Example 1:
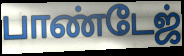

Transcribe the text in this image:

பாண்டேஜ்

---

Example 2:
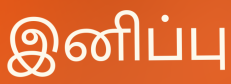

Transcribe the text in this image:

இனிப்பு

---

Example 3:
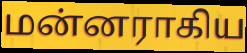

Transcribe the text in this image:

மன்னராகிய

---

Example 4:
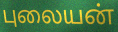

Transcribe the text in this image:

புலையன்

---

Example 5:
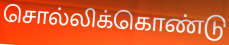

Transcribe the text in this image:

சொல்லிக்கொண்டு